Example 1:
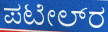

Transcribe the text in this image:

ಪಟೇಲ್‌ರ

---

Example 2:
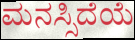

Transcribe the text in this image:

ಮನಸ್ಸಿದೆಯೆ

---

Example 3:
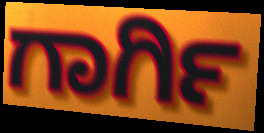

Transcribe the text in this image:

ಗಾರ್ಗಿ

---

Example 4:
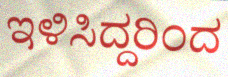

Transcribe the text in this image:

ಇಳಿಸಿದ್ದರಿಂದ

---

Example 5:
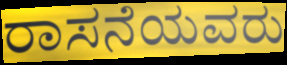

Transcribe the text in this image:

ರಾಸನೆಯವರು